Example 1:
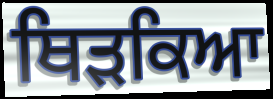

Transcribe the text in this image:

ਥਿੜਕਿਆ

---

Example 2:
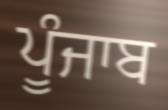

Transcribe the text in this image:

ਪੂੰਜਾਬ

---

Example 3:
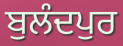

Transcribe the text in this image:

ਬੁਲੰਦਪੁਰ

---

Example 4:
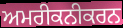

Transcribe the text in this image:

ਅਮਰੀਕਨੀਕਰਨ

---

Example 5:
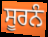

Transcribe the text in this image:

ਸੂਰਨੰ